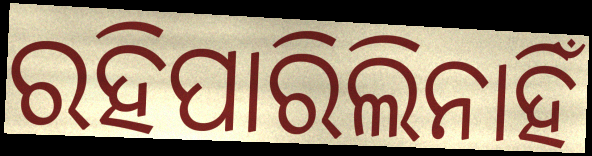
ରହିପାରିଲିନାହିଁ